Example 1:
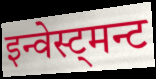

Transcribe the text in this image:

इन्वेस्ट्मन्ट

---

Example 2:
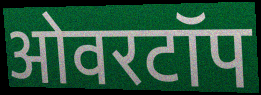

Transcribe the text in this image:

ओवरटॉप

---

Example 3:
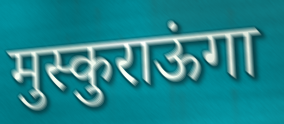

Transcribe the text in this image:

मुस्कुराऊंगा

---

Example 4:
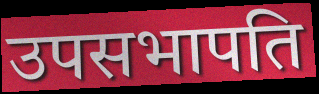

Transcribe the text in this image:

उपसभापति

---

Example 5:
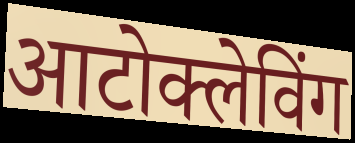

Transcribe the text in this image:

आटोक्लेविंग